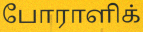
போராளிக்